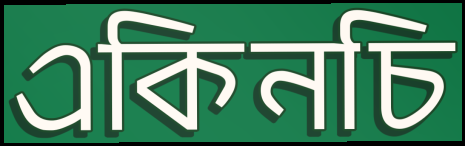
একিনচি